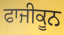
ਫਾਜੀਕੂਨ